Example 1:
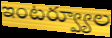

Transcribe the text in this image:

ఇంటర్వ్యూల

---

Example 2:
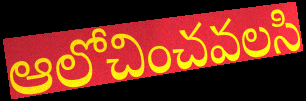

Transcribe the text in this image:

ఆలోచించవలసి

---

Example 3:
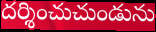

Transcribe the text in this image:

దర్శించుచుండును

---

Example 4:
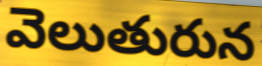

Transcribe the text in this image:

వెలుతురున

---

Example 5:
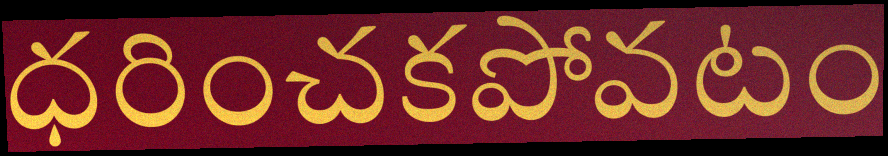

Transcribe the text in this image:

ధరించకపోవటం